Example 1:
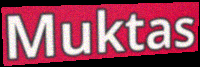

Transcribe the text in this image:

Muktas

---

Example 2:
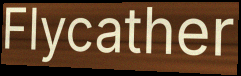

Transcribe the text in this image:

Flycather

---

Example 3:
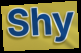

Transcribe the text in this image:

Shy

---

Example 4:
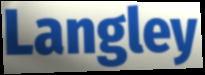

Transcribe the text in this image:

Langley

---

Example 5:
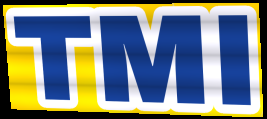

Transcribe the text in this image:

TMI